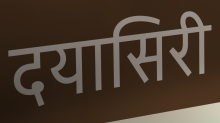
दयासिरी